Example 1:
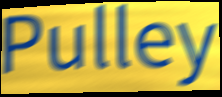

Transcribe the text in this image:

Pulley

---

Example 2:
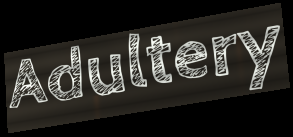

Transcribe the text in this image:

Adultery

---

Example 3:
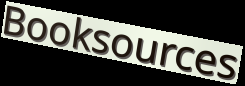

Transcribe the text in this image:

Booksources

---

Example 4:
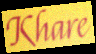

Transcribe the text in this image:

Khare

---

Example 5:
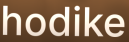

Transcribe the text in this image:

hodike